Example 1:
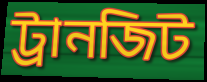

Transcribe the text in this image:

ট্রানজিট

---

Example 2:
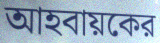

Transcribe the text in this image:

আহবায়কের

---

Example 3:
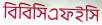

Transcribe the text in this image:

বিবিসিএফইসি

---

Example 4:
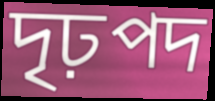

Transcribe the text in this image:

দৃঢ়পদ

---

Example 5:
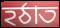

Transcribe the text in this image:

হঠাত